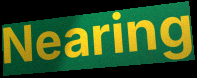
Nearing